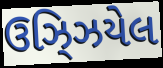
ઉઝ્ઝિયેલ